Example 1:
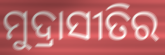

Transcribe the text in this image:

ମୁଦ୍ରାସୀତିର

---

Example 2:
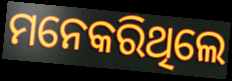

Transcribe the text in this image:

ମନେକରିଥିଲେ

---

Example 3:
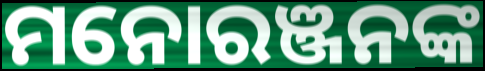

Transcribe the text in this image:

ମନୋରଞ୍ଜନଙ୍କ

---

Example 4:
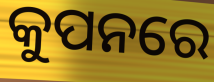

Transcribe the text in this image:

କୁପନରେ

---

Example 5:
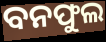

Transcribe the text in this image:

ବନଫୁଲ